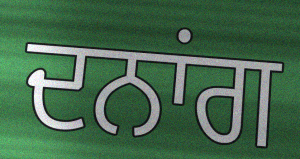
ਦਨਾਂਗ